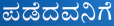
ಪಡೆದವನಿಗೆ